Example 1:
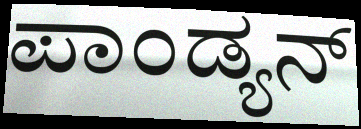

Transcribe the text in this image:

ಪಾಂಡ್ಯನ್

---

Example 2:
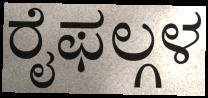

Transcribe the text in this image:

ರೈಫಲ್ಗಳ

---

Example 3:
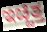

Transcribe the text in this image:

ಇಚ್ಚಿತ್ತ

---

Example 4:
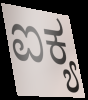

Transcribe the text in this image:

ಐಕ್ಯ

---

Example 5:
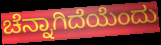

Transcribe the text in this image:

ಚೆನ್ನಾಗಿದೆಯೆಂದು